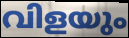
വിളയും